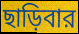
ছাড়িবার